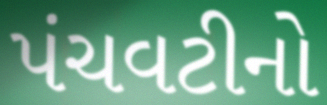
પંચવટીનો